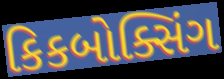
કિકબોક્સિંગ